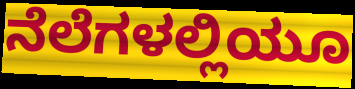
ನೆಲೆಗಳಲ್ಲಿಯೂ